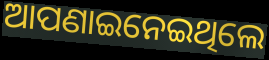
ଆପଣାଇନେଇଥିଲେ